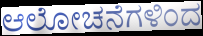
ಆಲೋಚನೆಗಳಿಂದ